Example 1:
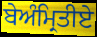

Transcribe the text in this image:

ਬੇਅੰਮ੍ਰਿਤੀਏ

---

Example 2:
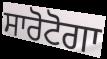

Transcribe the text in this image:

ਸਾਰੋਟੋਗਾ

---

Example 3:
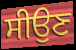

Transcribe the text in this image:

ਸੀਉਣ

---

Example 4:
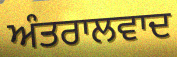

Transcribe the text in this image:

ਅੰਤਰਾਲਵਾਦ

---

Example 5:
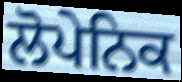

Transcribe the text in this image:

ਲੋਪੇਨਿਕ